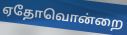
ஏதோவொன்றை